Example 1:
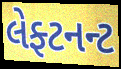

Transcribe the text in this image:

લેફ્ટનન્ટ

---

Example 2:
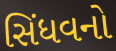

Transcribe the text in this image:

સિંધવનો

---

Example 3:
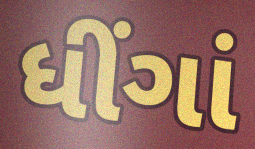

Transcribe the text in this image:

ધીંગાં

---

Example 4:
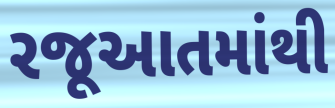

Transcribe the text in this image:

રજૂઆતમાંથી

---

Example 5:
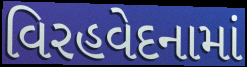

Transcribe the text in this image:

વિરહવેદનામાં